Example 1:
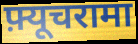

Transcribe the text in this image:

फ़्यूचरामा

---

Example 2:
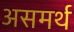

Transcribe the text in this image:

असमर्थ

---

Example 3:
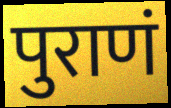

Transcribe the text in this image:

पुराणं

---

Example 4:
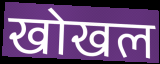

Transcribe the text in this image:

खोखल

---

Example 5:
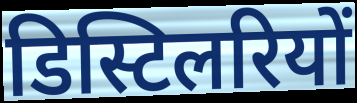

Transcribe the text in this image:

डिस्टिलरियों